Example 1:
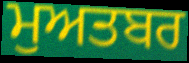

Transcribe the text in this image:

ਮੁਅਤਬਰ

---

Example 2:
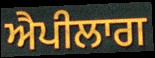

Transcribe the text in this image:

ਐਪੀਲਾਗ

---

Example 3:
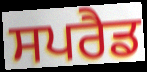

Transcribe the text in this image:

ਸਪਰੈਡ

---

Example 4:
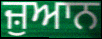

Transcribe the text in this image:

ਜ਼ੁਆਨ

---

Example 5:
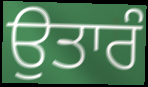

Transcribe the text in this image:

ਉਤਾਰੰ